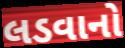
લડવાનો